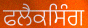
ਫਲੈਕਸਿੰਗ